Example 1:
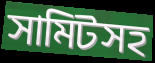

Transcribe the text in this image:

সামিটসহ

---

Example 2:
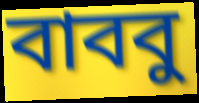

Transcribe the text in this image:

বাববু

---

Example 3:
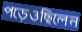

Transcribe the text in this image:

পড়েওছিলেন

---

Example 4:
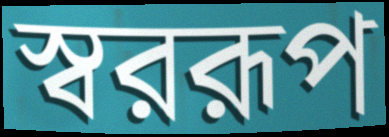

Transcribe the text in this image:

স্বররূপ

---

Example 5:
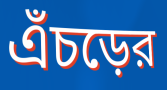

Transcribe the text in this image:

এঁচড়ের